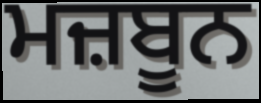
ਮਜ਼ਬੂਨ